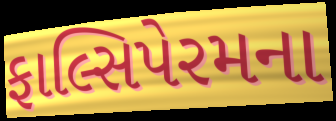
ફાલ્સિપેરમના